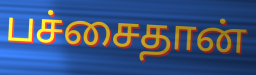
பச்சைதான்